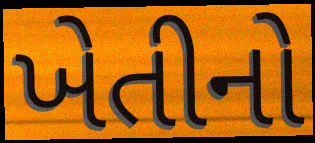
ખેતીનો